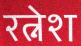
रत्नेश